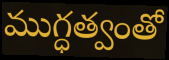
ముగ్ధత్వంతో